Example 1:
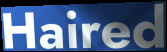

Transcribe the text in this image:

Haired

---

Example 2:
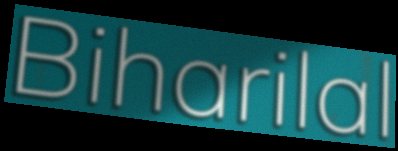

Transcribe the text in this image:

Biharilal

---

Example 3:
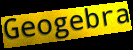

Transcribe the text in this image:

Geogebra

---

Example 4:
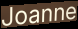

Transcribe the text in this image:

Joanne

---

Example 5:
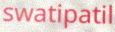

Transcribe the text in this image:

swatipatil